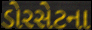
ડોરસેટના